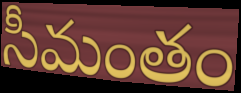
సీమంతం